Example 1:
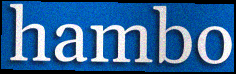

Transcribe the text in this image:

hambo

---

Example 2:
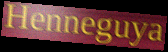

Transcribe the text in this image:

Henneguya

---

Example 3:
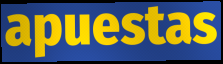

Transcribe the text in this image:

apuestas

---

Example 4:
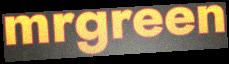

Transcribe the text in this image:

mrgreen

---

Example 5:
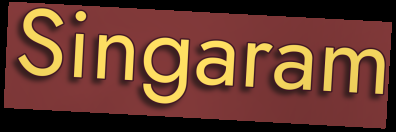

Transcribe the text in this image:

Singaram